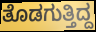
ತೊಡಗುತ್ತಿದ್ದ